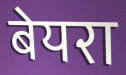
बेयरा